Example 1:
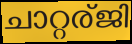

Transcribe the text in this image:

ചാറ്റര്ജി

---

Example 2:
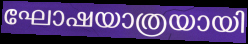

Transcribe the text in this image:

ഘോഷയാത്രയായി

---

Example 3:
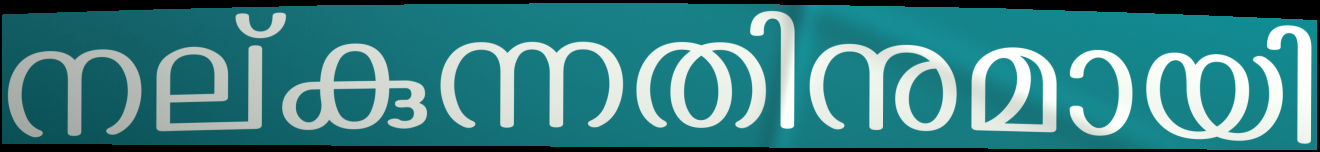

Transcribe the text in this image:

നല്‌കുന്നതിനുമായി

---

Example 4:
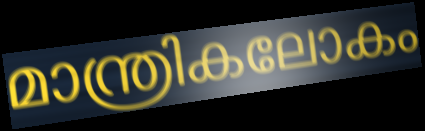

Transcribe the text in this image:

മാന്ത്രികലോകം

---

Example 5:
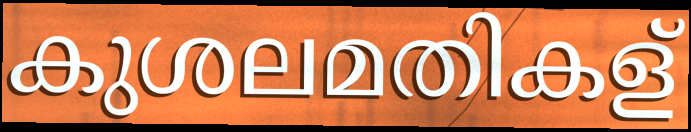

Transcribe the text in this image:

കുശലമതികള്